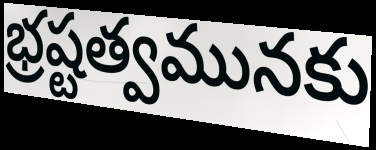
భ్రష్టత్వమునకు